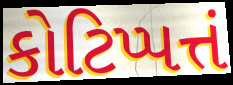
કોટિપ્પત્તં